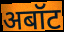
अबॉट